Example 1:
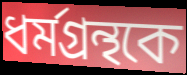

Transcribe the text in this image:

ধর্মগ্রন্থকে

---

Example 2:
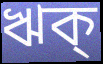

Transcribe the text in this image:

ঋক্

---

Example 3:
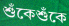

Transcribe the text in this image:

শুঁকেশুঁকে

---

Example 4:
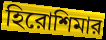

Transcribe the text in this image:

হিরোশিমার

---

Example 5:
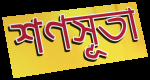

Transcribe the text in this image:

শণসূতা